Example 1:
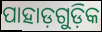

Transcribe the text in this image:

ପାହାଡ଼ଗୁଡ଼ିକ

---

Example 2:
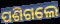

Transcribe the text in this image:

ପଶିଗଲେ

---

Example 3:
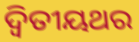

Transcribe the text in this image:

ଦ୍ବିତୀୟଥର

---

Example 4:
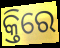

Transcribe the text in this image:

କ୍ତିରେ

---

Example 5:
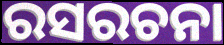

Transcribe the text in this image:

ରସରଚନା